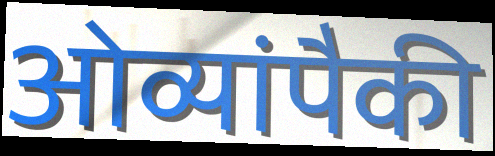
ओव्यांपैकी